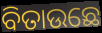
ବିତାଉଛେ